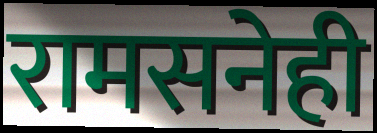
रामसनेही